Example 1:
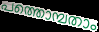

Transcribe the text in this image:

പത്തൊമ്പതാം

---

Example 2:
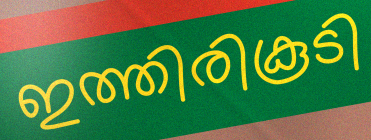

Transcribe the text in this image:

ഇത്തിരികൂടി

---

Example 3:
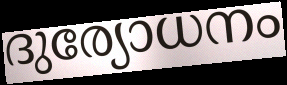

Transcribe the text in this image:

ദുര്യോധനം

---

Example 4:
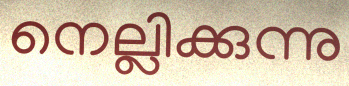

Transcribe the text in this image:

നെല്ലിക്കുന്നു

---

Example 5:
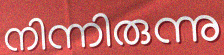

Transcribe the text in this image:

നിന്നിരുന്നു